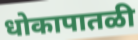
धोकापातळी